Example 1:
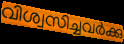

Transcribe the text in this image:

വിശ്വസിച്ചവർക്കു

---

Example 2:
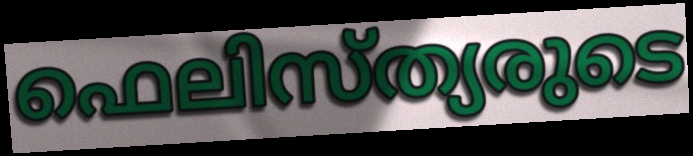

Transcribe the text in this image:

ഫെലിസ്ത്യരുടെ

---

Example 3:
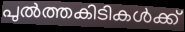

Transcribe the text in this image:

പുൽത്തകിടികൾക്ക്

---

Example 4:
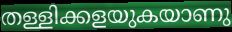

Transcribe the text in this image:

തള്ളിക്കളയുകയാണു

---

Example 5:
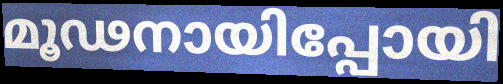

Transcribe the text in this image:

മൂഢനായിപ്പോയി